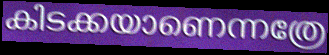
കിടക്കയാണെന്നത്രേ